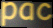
pac